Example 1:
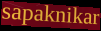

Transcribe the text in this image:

sapaknikar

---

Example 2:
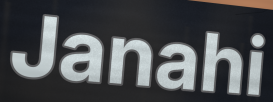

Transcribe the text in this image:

Janahi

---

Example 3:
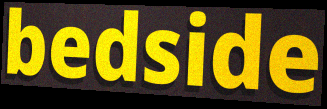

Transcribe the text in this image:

bedside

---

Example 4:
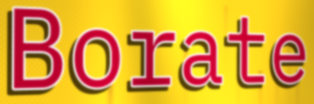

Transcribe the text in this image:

Borate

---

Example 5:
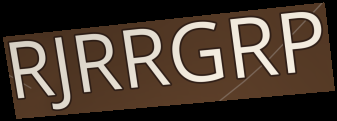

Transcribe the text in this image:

RJRRGRP